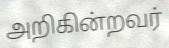
அறிகின்றவர்